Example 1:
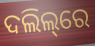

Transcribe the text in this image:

ଦଲିଲ୍‌ରେ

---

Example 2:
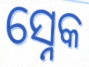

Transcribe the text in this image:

ସ୍ନେକ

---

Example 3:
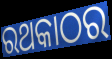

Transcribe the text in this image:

ରଥକାଠର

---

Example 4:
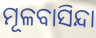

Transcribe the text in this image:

ମୂଳବାସିନ୍ଦା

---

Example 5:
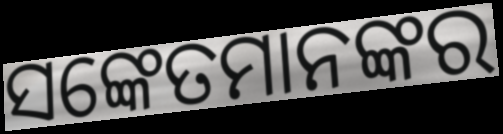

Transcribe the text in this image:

ସଙ୍କେତମାନଙ୍କର